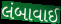
લંબાવાઈ